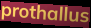
prothallus